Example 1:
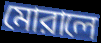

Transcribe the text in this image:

মোরালে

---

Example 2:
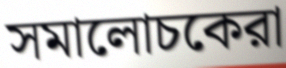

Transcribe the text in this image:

সমালোচকেরা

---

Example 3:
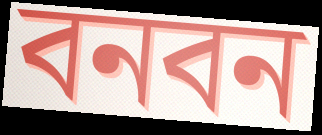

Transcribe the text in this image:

বনবন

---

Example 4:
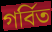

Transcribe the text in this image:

গর্বিত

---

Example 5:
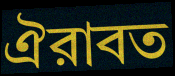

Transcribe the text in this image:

ঐরাবত